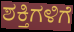
ಶಕ್ತಿಗಳಿಗೆ